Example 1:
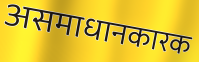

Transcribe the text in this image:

असमाधानकारक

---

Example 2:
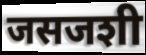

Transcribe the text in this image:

जसजशी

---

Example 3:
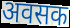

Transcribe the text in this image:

अवसक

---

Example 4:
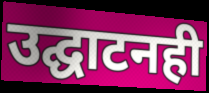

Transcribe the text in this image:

उद्घाटनही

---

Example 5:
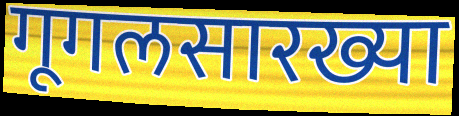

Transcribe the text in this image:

गूगलसारख्या